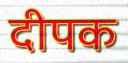
दीपक